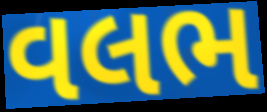
વલભ